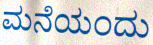
ಮನೆಯಂದು